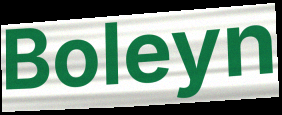
Boleyn